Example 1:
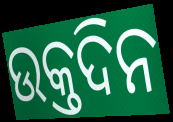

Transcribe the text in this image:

ଉକ୍ତଦିନ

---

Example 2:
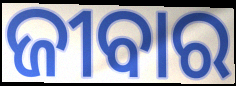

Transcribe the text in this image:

ଜୀବାର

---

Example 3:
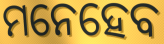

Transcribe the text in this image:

ମନେହେବ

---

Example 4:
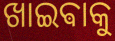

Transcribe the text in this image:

ଖାଇଵାକୁ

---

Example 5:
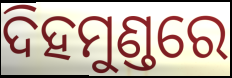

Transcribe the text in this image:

ଦିହମୁଣ୍ଡରେ